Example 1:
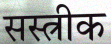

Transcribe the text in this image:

सस्त्रीक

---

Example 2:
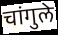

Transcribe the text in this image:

चांगुले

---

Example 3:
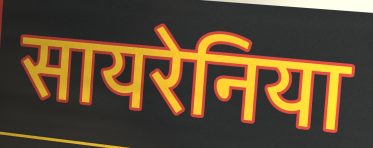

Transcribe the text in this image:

सायरेनिया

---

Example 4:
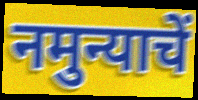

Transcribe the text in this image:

नमुन्याचें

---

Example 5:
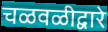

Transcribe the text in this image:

चळवळीद्वारे